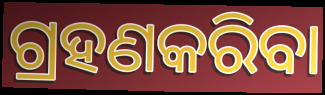
ଗ୍ରହଣକରିବା